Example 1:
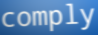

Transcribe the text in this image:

comply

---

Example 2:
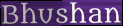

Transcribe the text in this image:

Bhushan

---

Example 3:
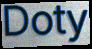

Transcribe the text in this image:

Doty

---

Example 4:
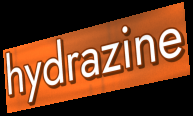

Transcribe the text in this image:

hydrazine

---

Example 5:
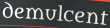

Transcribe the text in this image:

demulcent